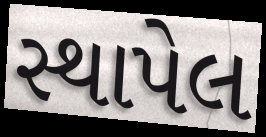
સ્થાપેલ